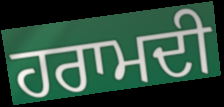
ਹਰਾਮਦੀ